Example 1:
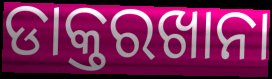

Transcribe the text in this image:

ଡାକ୍ତରଖାନା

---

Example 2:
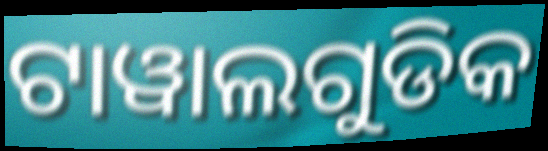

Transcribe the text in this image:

ଟାୱାଲଗୁଡିକ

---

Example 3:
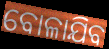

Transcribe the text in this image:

ବୋଳାଯିବ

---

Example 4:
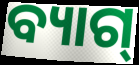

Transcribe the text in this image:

ବ୍ୟାଗ୍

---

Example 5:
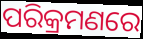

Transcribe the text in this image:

ପରିକ୍ରମଣରେ